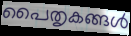
പൈതൃകങ്ങൾ